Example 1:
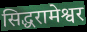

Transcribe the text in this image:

सिद्धरामेश्वर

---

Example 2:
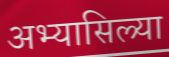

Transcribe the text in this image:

अभ्यासिल्या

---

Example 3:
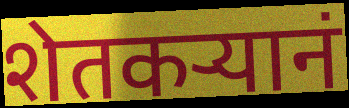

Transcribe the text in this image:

शेतकर्‍यानं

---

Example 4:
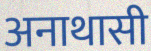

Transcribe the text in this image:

अनाथासी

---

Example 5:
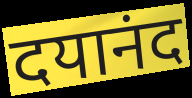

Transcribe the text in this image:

दयानंद